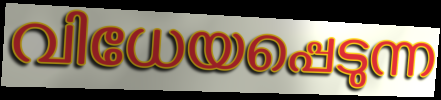
വിധേയപ്പെടുന്ന